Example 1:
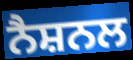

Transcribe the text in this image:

ਨੈਸ਼ਨਲ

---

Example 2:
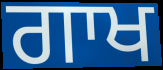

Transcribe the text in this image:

ਗਾਖ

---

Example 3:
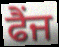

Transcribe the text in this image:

ਫੈਂਜ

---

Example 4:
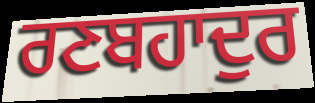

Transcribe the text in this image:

ਰਣਬਹਾਦੁਰ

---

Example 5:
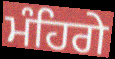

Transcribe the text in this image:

ਮੰਹਿਗੇ